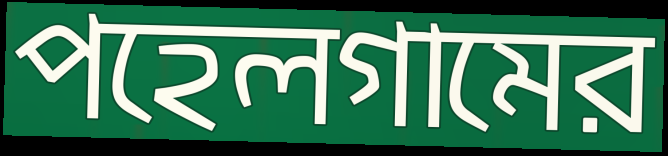
পহেলগামের